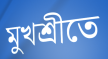
মুখশ্রীতে